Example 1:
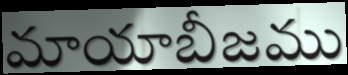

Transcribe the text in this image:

మాయాబీజము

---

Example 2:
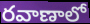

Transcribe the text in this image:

రవాణాలో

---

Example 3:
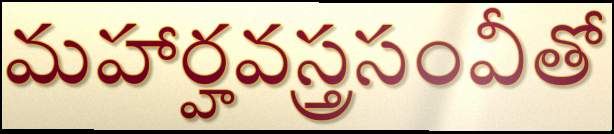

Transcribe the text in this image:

మహార్హవస్త్రసంవీతో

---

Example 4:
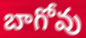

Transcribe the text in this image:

బాగోవు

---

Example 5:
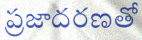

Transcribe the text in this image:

ప్రజాదరణతో